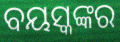
ବୟସ୍କଙ୍କର